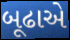
બૂઢાએ